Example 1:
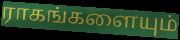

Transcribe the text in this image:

ராகங்களையும்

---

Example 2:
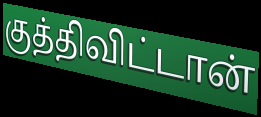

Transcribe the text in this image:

குத்திவிட்டான்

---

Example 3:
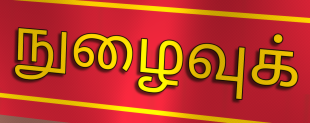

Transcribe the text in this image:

நுழைவுக்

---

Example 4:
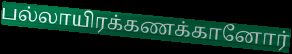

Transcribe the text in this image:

பல்லாயிரக்கணக்கானோர்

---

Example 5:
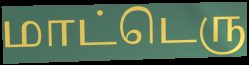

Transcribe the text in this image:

மாட்டெரு